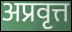
अप्रवृत्त